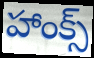
హాంక్స్